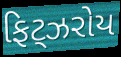
ફિટ્ઝરોય